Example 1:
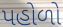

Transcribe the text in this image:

પહોળો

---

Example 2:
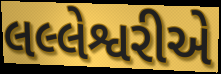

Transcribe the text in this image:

લલ્લેશ્વરીએ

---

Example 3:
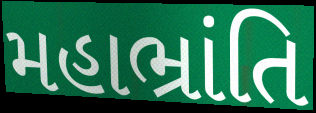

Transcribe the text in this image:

મહાભ્રાંતિ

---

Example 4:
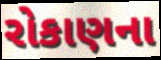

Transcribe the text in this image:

રોકાણના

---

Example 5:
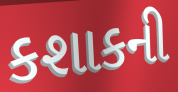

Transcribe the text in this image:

કશાકની